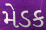
મેડક